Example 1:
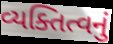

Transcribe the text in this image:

વ્યક્તિત્વનું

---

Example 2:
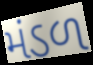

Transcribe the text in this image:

મંડળ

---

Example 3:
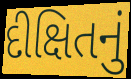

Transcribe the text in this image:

દીક્ષિતનું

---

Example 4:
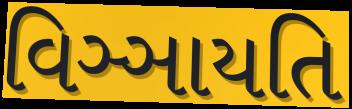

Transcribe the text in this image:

વિઞ્ઞાયતિ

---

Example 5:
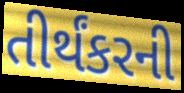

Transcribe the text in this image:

તીર્થંકરની